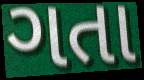
ગતા